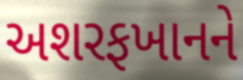
અશરફખાનને